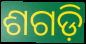
ଶଗଡ଼ି